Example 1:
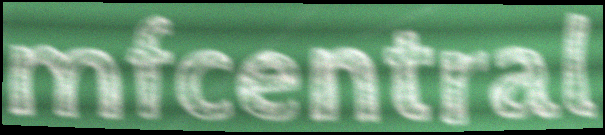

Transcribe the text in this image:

mfcentral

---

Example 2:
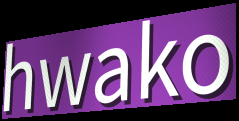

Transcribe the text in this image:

hwako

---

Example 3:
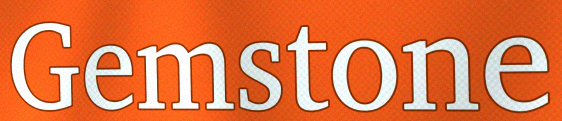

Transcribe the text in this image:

Gemstone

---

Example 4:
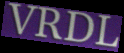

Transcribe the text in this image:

VRDL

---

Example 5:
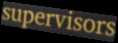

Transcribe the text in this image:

supervisors